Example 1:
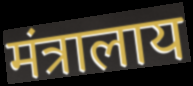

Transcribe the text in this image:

मंत्रालाय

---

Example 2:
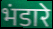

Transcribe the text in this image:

भंडारे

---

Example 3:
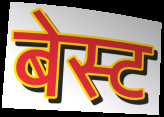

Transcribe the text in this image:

बेस्ट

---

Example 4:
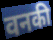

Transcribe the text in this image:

वनकी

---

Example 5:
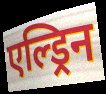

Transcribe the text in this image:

एल्ड्रिन